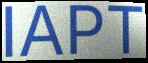
IAPT